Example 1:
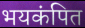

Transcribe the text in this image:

भयकंपित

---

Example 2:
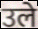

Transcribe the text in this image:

उले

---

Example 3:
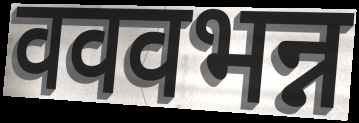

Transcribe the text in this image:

वववभन्न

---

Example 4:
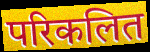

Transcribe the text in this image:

परिकलित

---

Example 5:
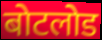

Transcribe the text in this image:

बोटलोड